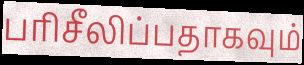
பரிசீலிப்பதாகவும்